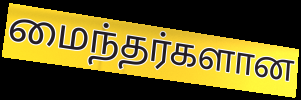
மைந்தர்களான